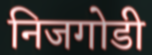
निजगोडी